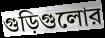
গুড়িগুলোর